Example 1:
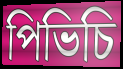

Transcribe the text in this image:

পিভিচি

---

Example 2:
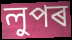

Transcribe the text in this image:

লুপৰ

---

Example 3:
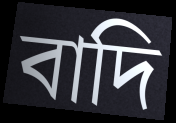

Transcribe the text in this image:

বাদি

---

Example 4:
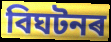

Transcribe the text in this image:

বিঘটনৰ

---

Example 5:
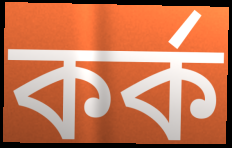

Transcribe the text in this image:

কৰ্ক